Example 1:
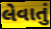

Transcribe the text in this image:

લેવાતું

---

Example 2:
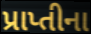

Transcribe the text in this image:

પ્રાપ્તીના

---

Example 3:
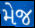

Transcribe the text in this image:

મેજ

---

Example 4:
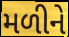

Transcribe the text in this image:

મળીને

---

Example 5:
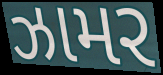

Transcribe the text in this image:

ઝામર